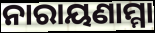
ନାରାୟଣାମ୍ମା